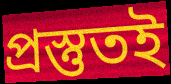
প্রস্তুতই